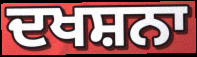
ਦਖਸ਼ਨਾ